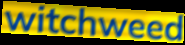
witchweed